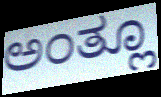
ಅಂತ್ಲೂ